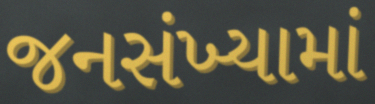
જનસંખ્યામાં